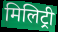
मिलिट्री